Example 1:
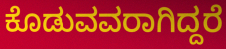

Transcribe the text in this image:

ಕೊಡುವವರಾಗಿದ್ದರೆ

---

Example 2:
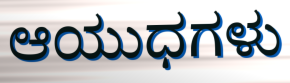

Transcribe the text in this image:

ಆಯುಧಗಳು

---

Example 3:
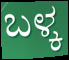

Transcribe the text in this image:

ಬಳ್ಕ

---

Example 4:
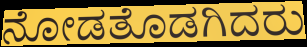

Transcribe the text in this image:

ನೋಡತೊಡಗಿದರು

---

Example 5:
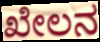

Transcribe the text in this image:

ಖೇಲನ